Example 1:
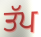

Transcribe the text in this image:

ਤੱਪ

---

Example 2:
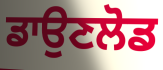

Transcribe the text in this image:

ਡਾਉਣਲੋਡ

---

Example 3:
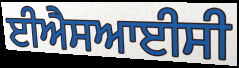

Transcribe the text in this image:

ਈਐਸਆਈਸੀ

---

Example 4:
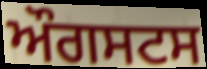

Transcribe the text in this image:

ਔਗਸਟਸ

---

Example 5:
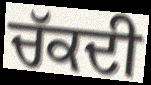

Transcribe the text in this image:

ਚੱਕਦੀ